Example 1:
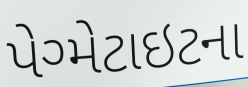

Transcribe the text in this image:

પેગ્મેટાઇટના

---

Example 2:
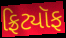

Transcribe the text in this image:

ફ્રિટ્યૉફ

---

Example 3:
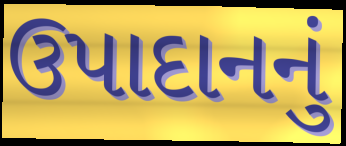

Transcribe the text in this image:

ઉપાદાનનું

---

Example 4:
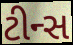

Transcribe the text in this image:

ટીન્સ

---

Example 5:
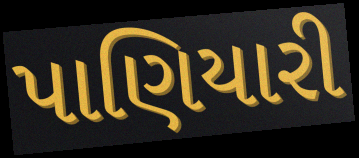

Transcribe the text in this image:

પાણિયારી